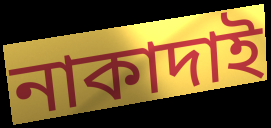
নাকাদাই